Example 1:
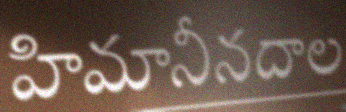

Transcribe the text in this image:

హిమానీనదాల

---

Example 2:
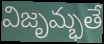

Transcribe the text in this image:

విజృమ్భతే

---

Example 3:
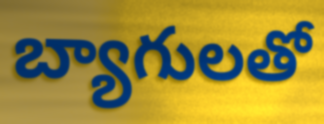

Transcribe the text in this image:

బ్యాగులతో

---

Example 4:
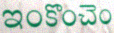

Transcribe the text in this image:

ఇంకొంచెం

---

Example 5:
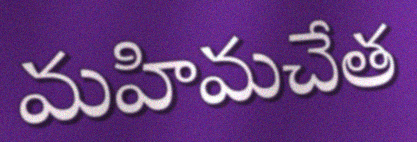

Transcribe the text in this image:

మహిమచేత